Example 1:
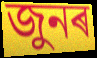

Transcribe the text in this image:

জুনৰ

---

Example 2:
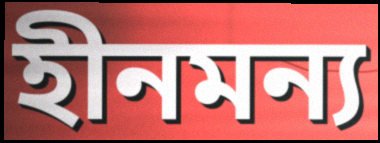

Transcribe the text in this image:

হীনমন্য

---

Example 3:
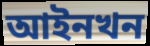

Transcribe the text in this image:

আইনখন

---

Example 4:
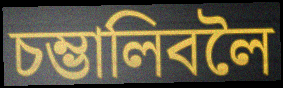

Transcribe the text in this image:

চম্ভালিবলৈ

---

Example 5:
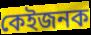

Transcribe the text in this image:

কেইজনক